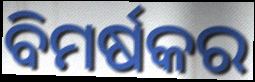
ବିମର୍ଷକର